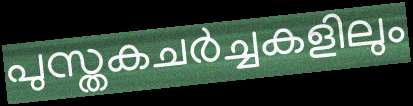
പുസ്തകചർച്ചകളിലും